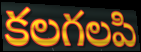
కలగలపి